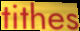
tithes